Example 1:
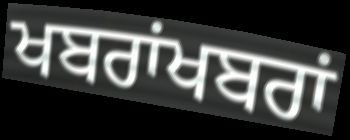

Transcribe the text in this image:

ਖਬਰਾਂਖਬਰਾਂ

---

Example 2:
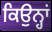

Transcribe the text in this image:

ਕਿਉਨ੍ਹਾਂ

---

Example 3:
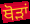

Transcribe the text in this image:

ਥੋੜਾਂ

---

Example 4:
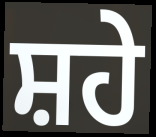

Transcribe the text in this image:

ਸ਼ਹੇ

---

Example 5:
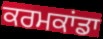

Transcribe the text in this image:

ਕਰਮਕਾਂਡਾ